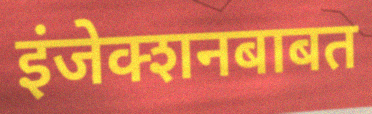
इंजेक्शनबाबत